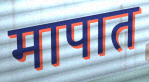
मापात